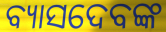
ବ୍ୟାସଦେବଙ୍କ